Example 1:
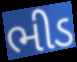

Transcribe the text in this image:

ભીડ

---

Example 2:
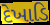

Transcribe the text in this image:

દેખાડિ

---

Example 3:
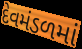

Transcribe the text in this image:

દેવમંડળમાં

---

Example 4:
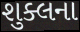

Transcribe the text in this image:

શુક્લના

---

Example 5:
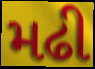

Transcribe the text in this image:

મઢી